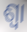
ଶ୍ୱା